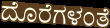
ದೊರೆಗಳಂತೆ